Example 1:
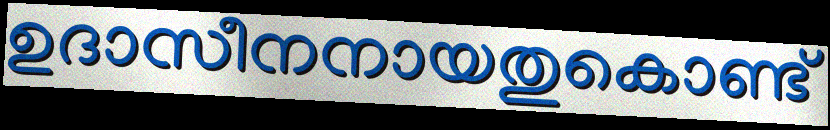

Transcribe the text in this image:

ഉദാസീനനായതുകൊണ്ട്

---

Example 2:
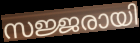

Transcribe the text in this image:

സജ്ജരായി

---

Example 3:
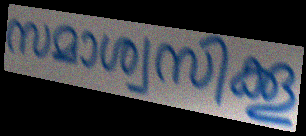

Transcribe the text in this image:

സമാശ്വസിക്കൂ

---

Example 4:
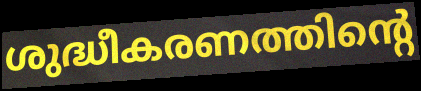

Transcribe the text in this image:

ശുദ്ധീകരണത്തിന്റെ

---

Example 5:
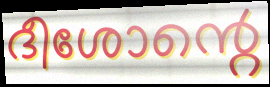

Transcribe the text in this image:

ദീശോന്റെ